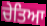
ਚੇਤਿਆ